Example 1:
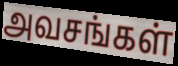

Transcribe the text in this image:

அவசங்கள்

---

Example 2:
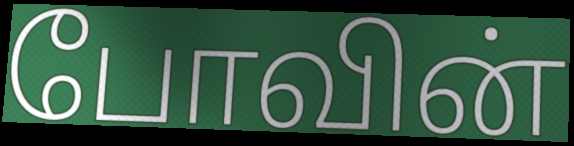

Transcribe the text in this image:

போவின்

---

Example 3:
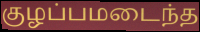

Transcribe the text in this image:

குழப்பமடைந்த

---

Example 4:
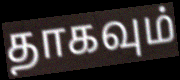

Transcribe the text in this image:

தாகவும்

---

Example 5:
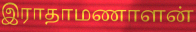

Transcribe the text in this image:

இராதாமணாளன்